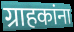
ग्राहकांना